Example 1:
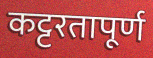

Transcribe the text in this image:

कट्टरतापूर्ण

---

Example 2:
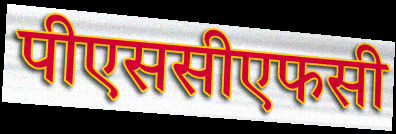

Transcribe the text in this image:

पीएससीएफसी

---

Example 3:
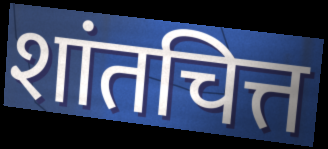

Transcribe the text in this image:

शांतचित्त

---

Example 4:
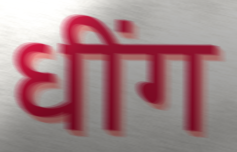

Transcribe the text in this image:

धींग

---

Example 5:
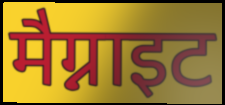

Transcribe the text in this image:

मैग्नाइट